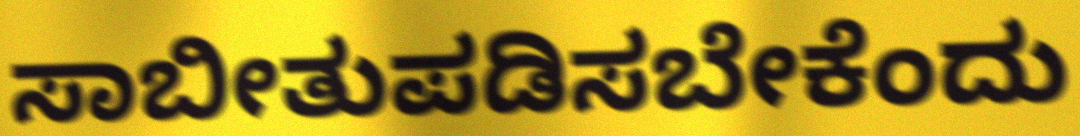
ಸಾಬೀತುಪಡಿಸಬೇಕೆಂದು